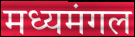
मध्यमंगल